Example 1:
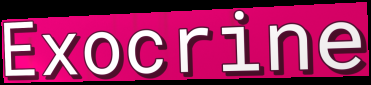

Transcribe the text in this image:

Exocrine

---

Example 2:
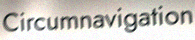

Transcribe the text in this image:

Circumnavigation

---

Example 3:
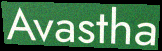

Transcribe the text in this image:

Avastha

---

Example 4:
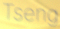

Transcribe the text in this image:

Tseng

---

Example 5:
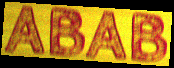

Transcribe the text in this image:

ABAB